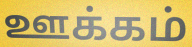
ஊக்கம்